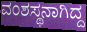
ವಂಶಸ್ಥನಾಗಿದ್ದ